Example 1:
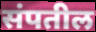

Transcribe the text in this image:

संपतील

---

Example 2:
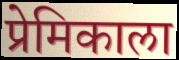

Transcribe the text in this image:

प्रेमिकाला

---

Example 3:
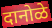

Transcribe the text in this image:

दानोळे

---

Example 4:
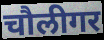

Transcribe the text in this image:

चौलीगर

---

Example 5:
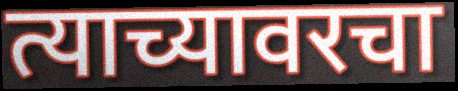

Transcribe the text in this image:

त्याच्यावरचा